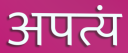
अपत्यं